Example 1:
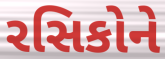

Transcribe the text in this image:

રસિકોને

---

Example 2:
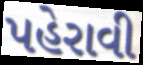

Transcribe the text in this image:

પહેરાવી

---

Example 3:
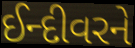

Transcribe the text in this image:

ઈન્દીવરને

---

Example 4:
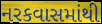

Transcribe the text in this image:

નરકવાસમાંથી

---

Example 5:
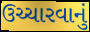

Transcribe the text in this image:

ઉચ્ચારવાનું